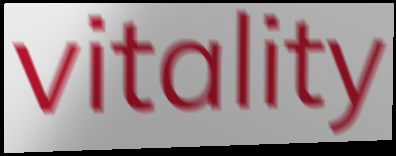
vitality